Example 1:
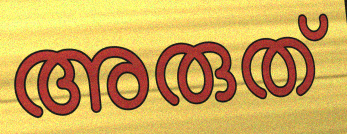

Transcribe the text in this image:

അരുത്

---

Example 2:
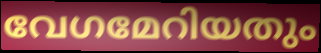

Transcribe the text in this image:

വേഗമേറിയതും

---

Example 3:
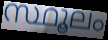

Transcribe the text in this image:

സ്ഥൂലം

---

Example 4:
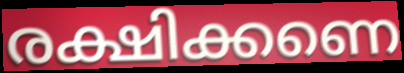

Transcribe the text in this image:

രക്ഷിക്കണെ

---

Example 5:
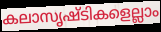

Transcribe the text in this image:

കലാസൃഷ്ടികളെല്ലാം